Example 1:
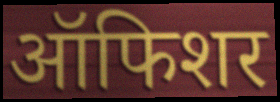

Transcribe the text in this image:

ऑफिशर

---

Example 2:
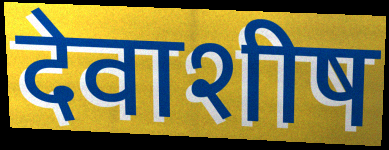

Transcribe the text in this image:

देवाशीष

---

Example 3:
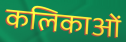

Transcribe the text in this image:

कलिकाओं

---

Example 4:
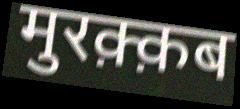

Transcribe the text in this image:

मुरक़्क़ब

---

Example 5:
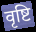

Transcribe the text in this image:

वृष्टि